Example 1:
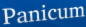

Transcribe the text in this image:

Panicum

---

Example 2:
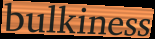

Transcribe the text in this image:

bulkiness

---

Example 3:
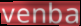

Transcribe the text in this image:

venba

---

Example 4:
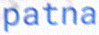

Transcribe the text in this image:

patna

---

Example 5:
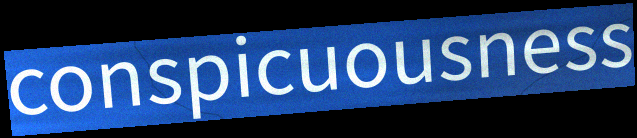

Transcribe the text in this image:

conspicuousness